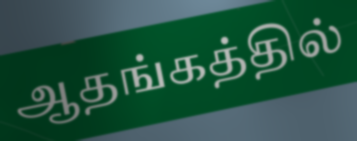
ஆதங்கத்தில்